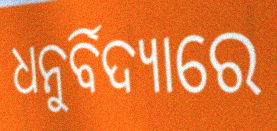
ଧନୁର୍ବିଦ୍ୟାରେ